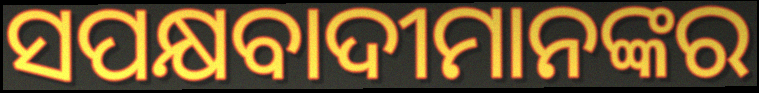
ସପକ୍ଷବାଦୀମାନଙ୍କର